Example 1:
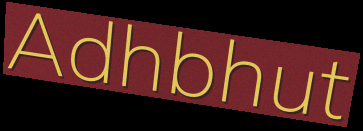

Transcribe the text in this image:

Adhbhut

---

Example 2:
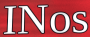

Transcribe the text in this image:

INos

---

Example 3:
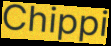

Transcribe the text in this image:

Chippi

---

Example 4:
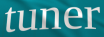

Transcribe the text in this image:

tuner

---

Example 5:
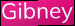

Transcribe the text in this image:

Gibney